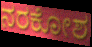
ನರಕೋಶ